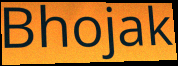
Bhojak